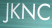
JKNC